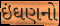
ઇંઘણનો